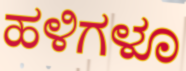
ಹಳಿಗಳೂ